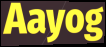
Aayog